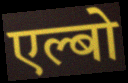
एल्बो